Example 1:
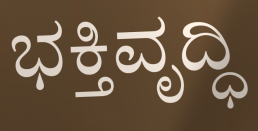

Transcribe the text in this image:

ಭಕ್ತಿವೃದ್ಧಿ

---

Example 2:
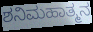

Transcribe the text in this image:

ಶನಿಮಹಾತ್ಮನ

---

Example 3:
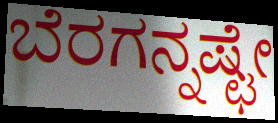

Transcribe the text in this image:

ಬೆರಗನ್ನಷ್ಟೇ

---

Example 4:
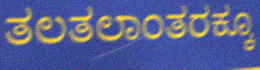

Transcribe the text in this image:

ತಲತಲಾಂತರಕ್ಕೂ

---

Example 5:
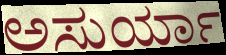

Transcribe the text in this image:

ಅಸುರ್ಯಾ